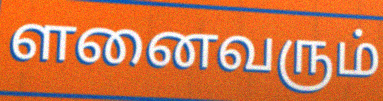
ளனைவரும்